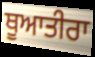
ਥੂਆਤੀਰਾ